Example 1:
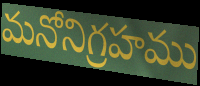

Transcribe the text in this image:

మనోనిగ్రహము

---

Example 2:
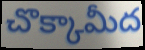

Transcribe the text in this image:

చొక్కామీద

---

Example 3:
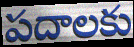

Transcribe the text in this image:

పదాలకు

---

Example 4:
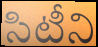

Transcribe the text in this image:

సిటీని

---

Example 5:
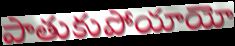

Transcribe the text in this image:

పాతుకుపోయాయో